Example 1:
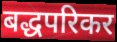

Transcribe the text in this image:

बद्धपरिकर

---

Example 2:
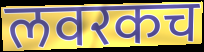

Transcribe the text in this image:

लवरकच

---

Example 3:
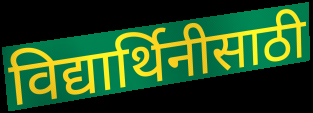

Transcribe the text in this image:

विद्यार्थिनीसाठी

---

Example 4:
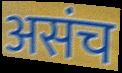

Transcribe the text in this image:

असंच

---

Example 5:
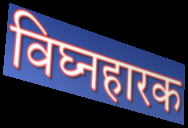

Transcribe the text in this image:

विघ्नहारक